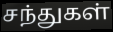
சந்துகள்